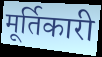
मूर्तिकारी